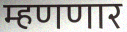
म्हणणार